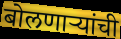
बोलणाऱ्यांची